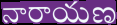
నారాయణ